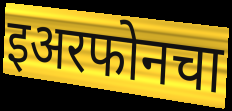
इअरफोनचा